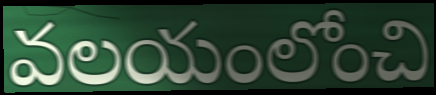
వలయంలోంచి